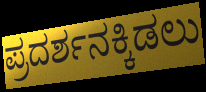
ಪ್ರದರ್ಶನಕ್ಕಿಡಲು